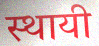
स्‍थायी